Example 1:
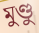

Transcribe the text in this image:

মুণ্ডু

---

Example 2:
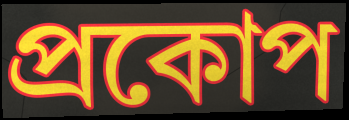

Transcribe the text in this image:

প্ৰকোপ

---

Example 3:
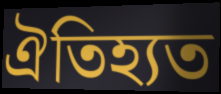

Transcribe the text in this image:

ঐতিহ্যত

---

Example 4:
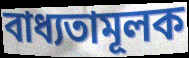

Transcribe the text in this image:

বাধ্যতামূলক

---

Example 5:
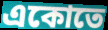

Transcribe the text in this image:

একোতে